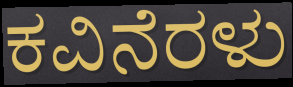
ಕವಿನೆರಳು